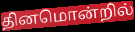
தினமொன்றில்